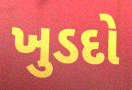
ખુડદો